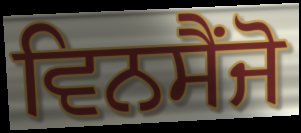
ਵਿਨਸੈਂਜੋ